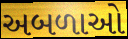
અબળાઓ